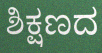
ಶಿಕ್ಷಣದ